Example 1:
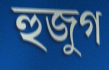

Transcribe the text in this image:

হুজুগ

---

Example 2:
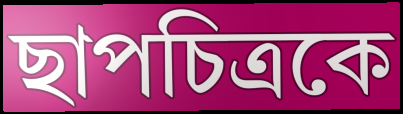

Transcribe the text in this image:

ছাপচিত্রকে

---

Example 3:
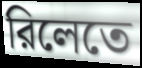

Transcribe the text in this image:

রিলেতে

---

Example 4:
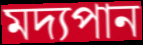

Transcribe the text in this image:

মদ্যপান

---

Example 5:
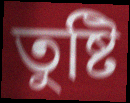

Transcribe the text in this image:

তুষ্টি